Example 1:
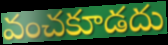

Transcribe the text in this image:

వంచకూడదు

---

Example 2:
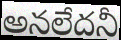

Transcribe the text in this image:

అనలేదనీ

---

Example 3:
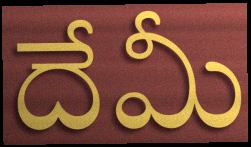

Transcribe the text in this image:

దేమీ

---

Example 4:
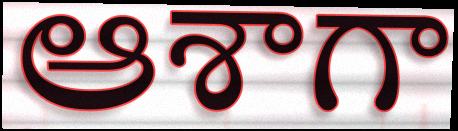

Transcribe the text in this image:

ఆశాగా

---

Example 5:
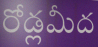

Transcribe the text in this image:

రోడ్లమీద